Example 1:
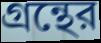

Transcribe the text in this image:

গ্রন্থের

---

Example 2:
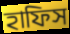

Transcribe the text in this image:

হাফিস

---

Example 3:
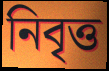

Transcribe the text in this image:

নিবৃত্ত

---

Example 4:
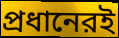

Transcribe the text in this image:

প্রধানেরই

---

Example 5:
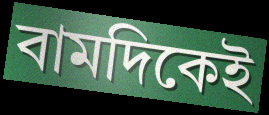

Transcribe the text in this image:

বামদিকেই